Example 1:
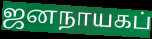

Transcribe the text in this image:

ஜனநாயகப்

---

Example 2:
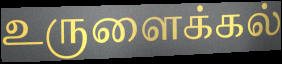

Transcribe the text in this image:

உருளைக்கல்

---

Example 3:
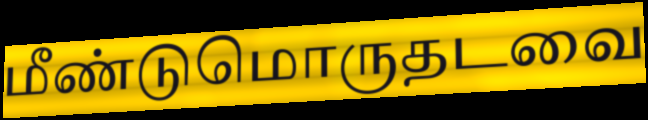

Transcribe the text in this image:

மீண்டுமொருதடவை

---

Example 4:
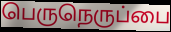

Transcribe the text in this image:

பெருநெருப்பை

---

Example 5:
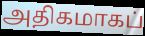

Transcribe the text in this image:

அதிகமாகப்